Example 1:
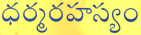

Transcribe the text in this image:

ధర్మరహస్యం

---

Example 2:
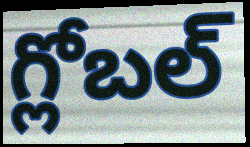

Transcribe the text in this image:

గ్లోబల్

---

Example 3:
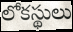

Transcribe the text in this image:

లోకస్థులు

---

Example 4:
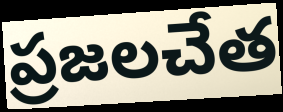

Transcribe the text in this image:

ప్రజలచేత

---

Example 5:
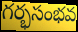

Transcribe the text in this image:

గర్భసంభవ